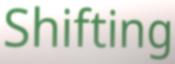
Shifting